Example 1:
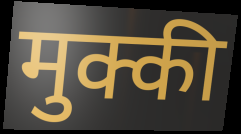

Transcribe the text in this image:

मुक्की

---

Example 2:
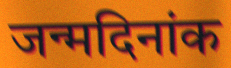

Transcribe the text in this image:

जन्मदिनांक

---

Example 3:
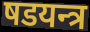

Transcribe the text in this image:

षडयन्त्र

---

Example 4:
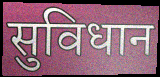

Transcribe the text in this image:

सुविधान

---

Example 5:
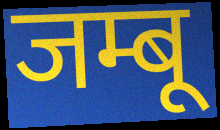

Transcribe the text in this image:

जम्बू